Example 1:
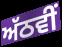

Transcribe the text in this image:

ਅੱਠਵੀਂ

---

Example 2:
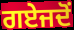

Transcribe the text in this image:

ਗਏਜਦੋਂ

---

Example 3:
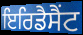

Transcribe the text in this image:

ਇਰਿਡੈਸੈਂਟ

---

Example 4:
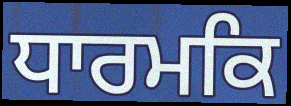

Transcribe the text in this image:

ਧਾਰਮਕਿ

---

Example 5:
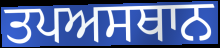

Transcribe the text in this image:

ਤਪਅਸਥਾਨ